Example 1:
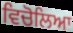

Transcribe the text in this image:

ਵਿਚੋਲਿਆ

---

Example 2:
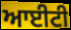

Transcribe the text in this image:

ਆਈਟੀ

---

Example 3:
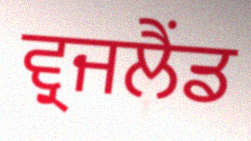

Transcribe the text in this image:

ਵ੍ਰਜਲੈਂਡ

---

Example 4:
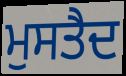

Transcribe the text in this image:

ਮੁਸਤੈਦ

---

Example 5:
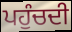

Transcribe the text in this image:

ਪਹੁੰਚਦੀ